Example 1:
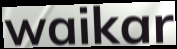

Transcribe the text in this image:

waikar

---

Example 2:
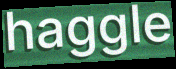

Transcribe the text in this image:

haggle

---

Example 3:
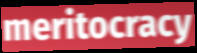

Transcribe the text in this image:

meritocracy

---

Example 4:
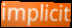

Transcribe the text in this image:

implicit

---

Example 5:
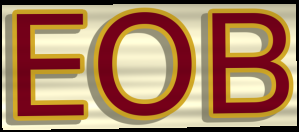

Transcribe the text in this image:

EOB